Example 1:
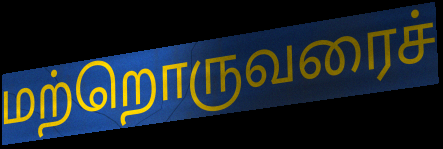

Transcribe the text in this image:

மற்றொருவரைச்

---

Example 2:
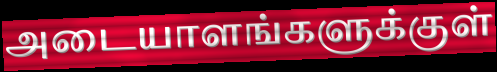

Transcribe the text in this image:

அடையாளங்களுக்குள்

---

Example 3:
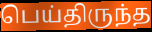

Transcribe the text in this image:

பெய்திருந்த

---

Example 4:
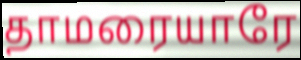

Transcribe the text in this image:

தாமரையாரே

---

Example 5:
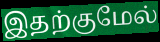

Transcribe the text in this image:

இதற்குமேல்